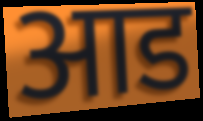
आड